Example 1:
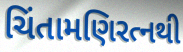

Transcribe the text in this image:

ચિંતામણિરત્નથી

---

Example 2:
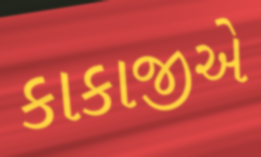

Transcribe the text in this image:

કાકાજીએ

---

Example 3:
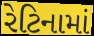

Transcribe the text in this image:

રેટિનામાં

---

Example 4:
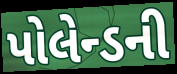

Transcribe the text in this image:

પોલેન્ડની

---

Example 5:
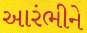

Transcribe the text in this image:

આરંભીને